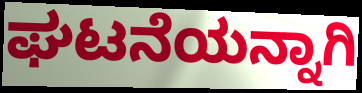
ಘಟನೆಯನ್ನಾಗಿ